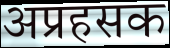
अप्रहसक